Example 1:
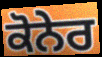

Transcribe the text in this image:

ਕੋਨੇਰ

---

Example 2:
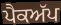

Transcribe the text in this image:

ਪੈਕਅੱਪ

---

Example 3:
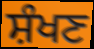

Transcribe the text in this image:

ਸ਼ੰਖਣ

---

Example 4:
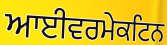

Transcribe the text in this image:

ਆਈਵਰਮੇਕਟਿਨ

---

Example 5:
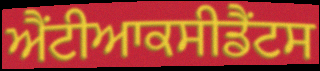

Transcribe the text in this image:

ਐਂਟੀਆਕਸੀਡੈਂਟਸ